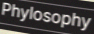
Phylosophy